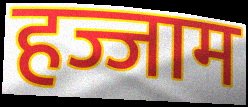
हज्जाम